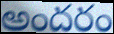
అందరం